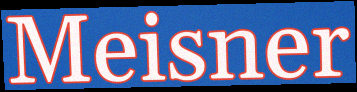
Meisner